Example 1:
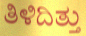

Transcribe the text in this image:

ತಿಳಿದಿತ್ತು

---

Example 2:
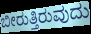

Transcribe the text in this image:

ಬೀರುತ್ತಿರುವುದು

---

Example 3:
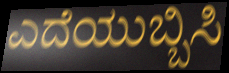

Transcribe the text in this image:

ಎದೆಯುಬ್ಬಿಸಿ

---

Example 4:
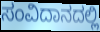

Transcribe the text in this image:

ಸಂವಿದಾನದಲ್ಲಿ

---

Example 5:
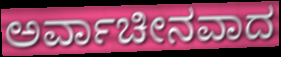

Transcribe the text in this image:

ಅರ್ವಾಚೀನವಾದ